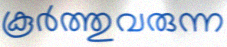
കൂർത്തുവരുന്ന